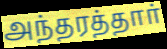
அந்தரத்தார்